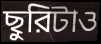
ছুরিটাও